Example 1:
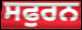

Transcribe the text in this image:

ਸਫੁਰਨ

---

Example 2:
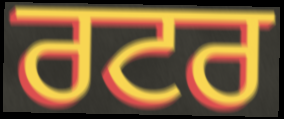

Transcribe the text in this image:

ਰਟਰ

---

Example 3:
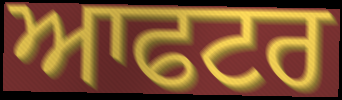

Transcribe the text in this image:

ਆਫਟਰ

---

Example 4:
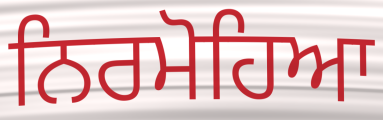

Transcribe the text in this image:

ਨਿਰਮੋਹਿਆ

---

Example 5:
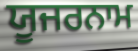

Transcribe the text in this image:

ਯੂਜਰਨਾਮ